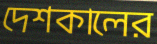
দেশকালের